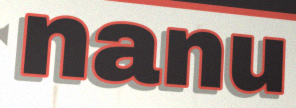
nanu